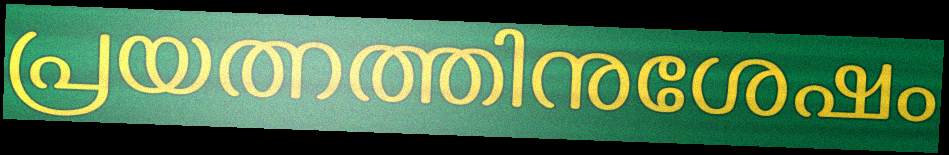
പ്രയത്നത്തിനുശേഷം